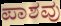
ಪಾಶವು